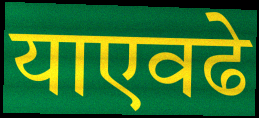
याएवढे